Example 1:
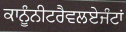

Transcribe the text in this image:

ਕਾਨੂੰਨੀਟਰੈਵਲਏਜੰਟਾਂ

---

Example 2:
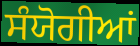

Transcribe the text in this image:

ਸੰਯੋਗੀਆਂ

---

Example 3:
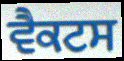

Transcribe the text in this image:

ਵੈਕਟਸ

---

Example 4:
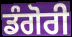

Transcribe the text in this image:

ਡੰਗੋਰੀ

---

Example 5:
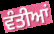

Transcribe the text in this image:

ਵੰਤੀਆਂ